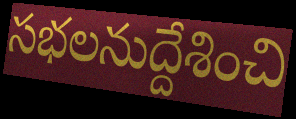
సభలనుద్దేశించి